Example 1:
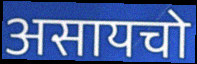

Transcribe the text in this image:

असायचो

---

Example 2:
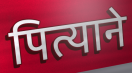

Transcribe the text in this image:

पित्याने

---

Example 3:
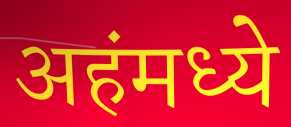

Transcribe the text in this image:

अहंमध्ये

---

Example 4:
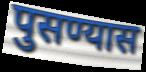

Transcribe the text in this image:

पुसण्यास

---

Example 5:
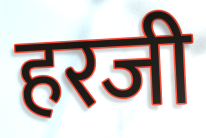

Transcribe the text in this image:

हरजी